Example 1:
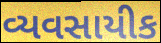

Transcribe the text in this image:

વ્યવસાયીક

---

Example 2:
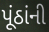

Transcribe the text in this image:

પૂંઠાંની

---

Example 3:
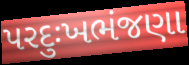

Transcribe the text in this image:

પરદુઃખભંજણા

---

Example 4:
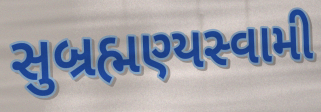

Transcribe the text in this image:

સુબ્રહ્મણ્યસ્વામી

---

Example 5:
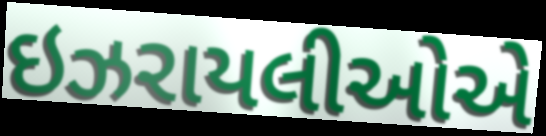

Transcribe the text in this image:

ઇઝરાયલીઓએ